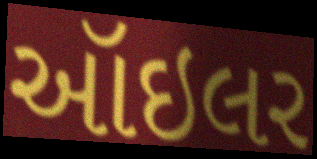
ઑઇલર